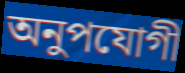
অনুপযোগী